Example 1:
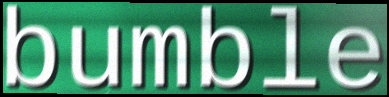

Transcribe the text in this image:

bumble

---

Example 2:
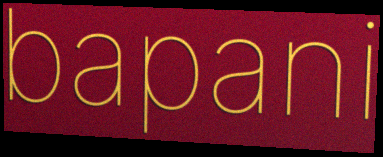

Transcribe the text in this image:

bapani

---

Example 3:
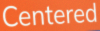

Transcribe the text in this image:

Centered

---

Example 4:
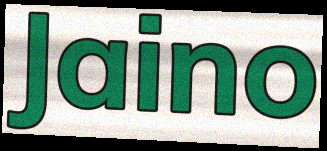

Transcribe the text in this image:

Jaino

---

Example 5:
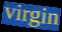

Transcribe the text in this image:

virgin